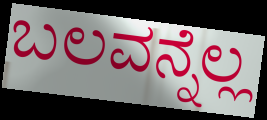
ಬಲವನ್ನೆಲ್ಲ